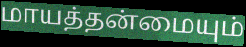
மாயத்தன்மையும்